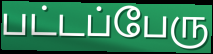
பட்டப்பேரு